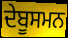
ਦੇਬੂਸਮਨ